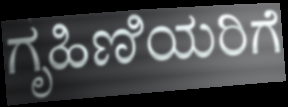
ಗೃಹಿಣಿಯರಿಗೆ